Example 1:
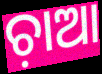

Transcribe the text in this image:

ଚ଼ାଆ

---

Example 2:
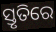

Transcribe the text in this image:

ସ୍ତୃତିରେ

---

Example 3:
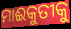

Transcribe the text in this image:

ମାଈକୁତୀକୁ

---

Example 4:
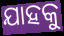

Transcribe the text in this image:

ଯାହକୁ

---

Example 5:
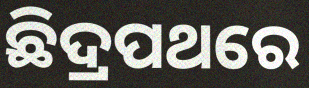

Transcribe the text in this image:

ଛିଦ୍ରପଥରେ